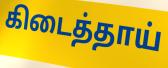
கிடைத்தாய்